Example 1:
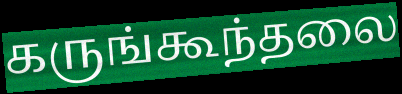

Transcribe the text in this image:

கருங்கூந்தலை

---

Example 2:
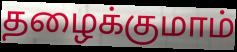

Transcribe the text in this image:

தழைக்குமாம்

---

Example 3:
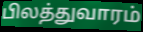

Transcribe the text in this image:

பிலத்துவாரம்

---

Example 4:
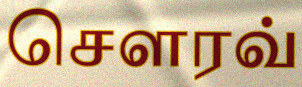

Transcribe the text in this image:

சௌரவ்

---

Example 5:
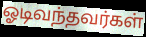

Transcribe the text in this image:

ஓடிவந்தவர்கள்